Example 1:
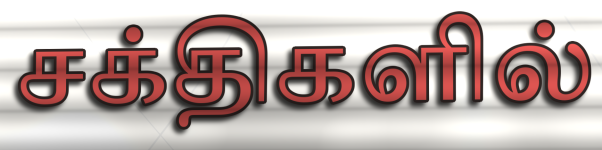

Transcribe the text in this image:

சக்திகளில்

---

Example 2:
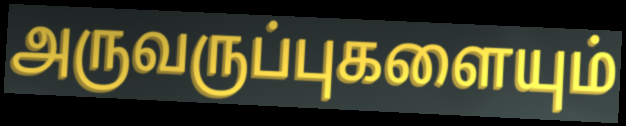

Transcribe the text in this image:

அருவருப்புகளையும்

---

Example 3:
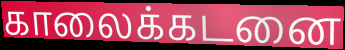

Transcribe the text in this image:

காலைக்கடனை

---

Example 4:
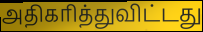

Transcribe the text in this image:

அதிகரித்துவிட்டது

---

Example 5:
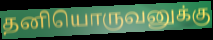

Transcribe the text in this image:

தனியொருவனுக்கு